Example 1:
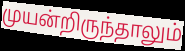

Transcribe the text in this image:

முயன்றிருந்தாலும்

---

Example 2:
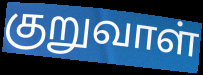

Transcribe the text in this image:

குறுவாள்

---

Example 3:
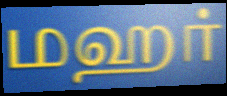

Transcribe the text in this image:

மஹர்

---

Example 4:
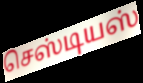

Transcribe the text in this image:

செஸ்டியஸ்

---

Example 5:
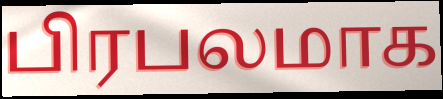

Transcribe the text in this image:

பிரபலமாக